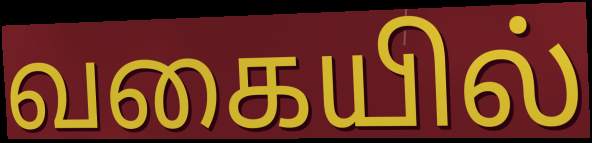
வகையில்